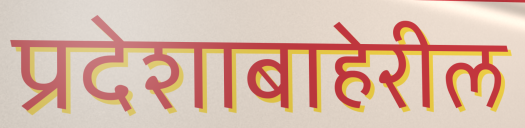
प्रदेशाबाहेरील